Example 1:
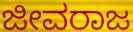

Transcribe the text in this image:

ಜೀವರಾಜ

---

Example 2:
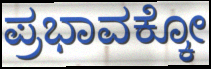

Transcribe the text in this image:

ಪ್ರಭಾವಕ್ಕೋ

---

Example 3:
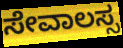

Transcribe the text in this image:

ಸೇವಾಲಸ್ಸ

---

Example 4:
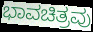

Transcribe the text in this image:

ಭಾವಚಿತ್ರವು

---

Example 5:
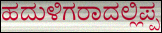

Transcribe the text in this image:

ಹದುಳಿಗರಾದಲ್ಲಿಪ್ಪ